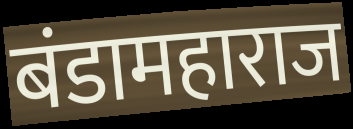
बंडामहाराज